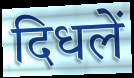
दिधलें